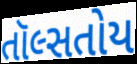
તૉલ્સતોય